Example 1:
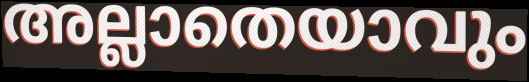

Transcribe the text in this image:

അല്ലാതെയാവും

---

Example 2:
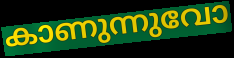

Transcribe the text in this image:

കാണുന്നുവോ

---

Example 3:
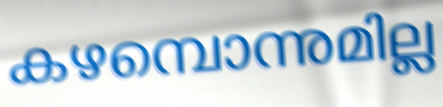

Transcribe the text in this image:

കഴമ്പൊന്നുമില്ല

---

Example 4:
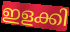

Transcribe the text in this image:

ഇളക്കി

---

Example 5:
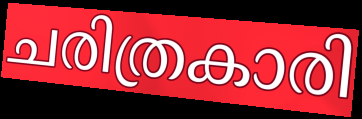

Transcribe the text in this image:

ചരിത്രകാരി